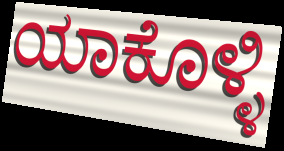
ಯಾಕೊಳ್ಳಿ